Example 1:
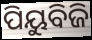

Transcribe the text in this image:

ପିୟୁବିଜି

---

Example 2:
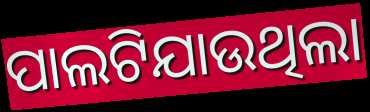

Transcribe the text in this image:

ପାଲଟିଯାଉଥିଲା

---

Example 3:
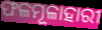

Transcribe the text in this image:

ଫଳମୂଳାହାରୀ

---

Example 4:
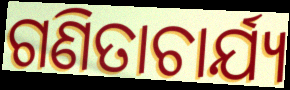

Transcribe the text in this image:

ଗଣିତାଚାର୍ଯ୍ୟ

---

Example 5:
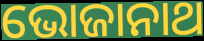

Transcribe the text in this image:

ଭୋଜାନାଥ